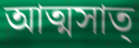
আত্মসাত্